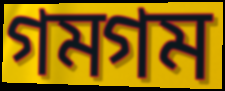
গমগম